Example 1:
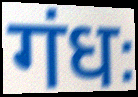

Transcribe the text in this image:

गंधः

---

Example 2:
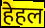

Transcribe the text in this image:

हेहल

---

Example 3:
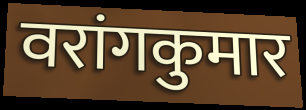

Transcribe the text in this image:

वरांगकुमार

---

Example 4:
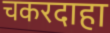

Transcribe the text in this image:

चकरदाहा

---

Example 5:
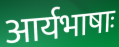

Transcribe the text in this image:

आर्यभाषाः